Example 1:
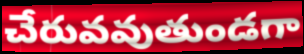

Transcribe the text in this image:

చేరువవుతుండగా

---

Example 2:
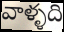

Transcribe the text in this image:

వాళ్ళది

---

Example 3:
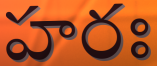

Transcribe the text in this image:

హరః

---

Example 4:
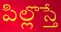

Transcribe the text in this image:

పిల్లొస్తే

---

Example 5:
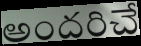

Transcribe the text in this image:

అందరిచే